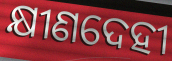
କ୍ଷୀଣଦେହୀ